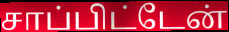
சாப்பிட்டேன்